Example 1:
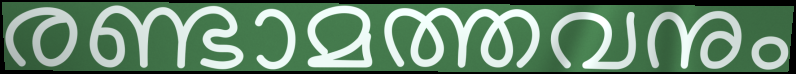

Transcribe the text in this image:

രണ്ടാമത്തവനും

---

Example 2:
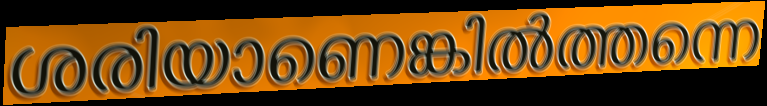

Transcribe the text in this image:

ശരിയാണെങ്കിൽത്തന്നെ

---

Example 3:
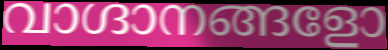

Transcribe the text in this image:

വാഗ്ദാനങ്ങളോ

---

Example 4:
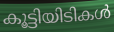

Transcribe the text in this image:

കൂട്ടിയിടികൾ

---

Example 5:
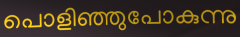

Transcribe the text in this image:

പൊളിഞ്ഞുപോകുന്നു